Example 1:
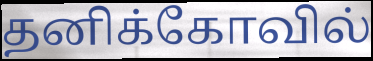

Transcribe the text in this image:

தனிக்கோவில்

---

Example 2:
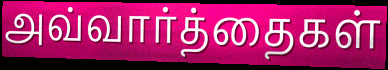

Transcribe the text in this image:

அவ்வார்த்தைகள்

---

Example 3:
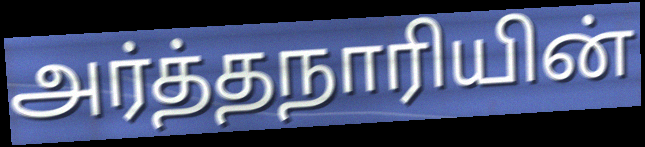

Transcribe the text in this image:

அர்த்தநாரியின்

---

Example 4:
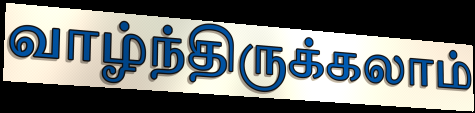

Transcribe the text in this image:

வாழ்ந்திருக்கலாம்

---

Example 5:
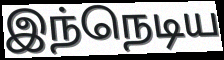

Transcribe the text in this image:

இந்நெடிய